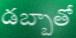
డబ్బాతో